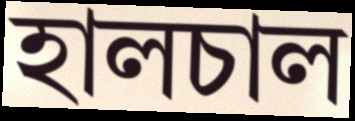
হালচাল